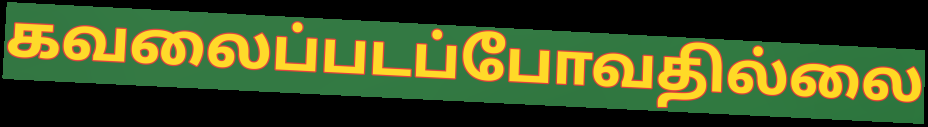
கவலைப்படப்போவதில்லை